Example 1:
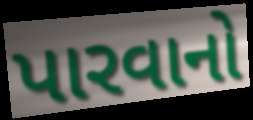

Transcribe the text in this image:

પારવાનો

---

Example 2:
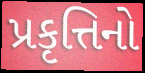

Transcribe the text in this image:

પ્રકૃત્તિનો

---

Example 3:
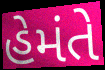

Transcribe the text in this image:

હેમંતે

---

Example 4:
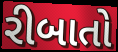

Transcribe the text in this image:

રીબાતો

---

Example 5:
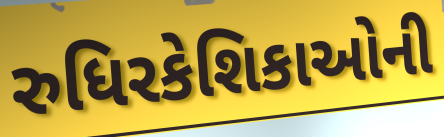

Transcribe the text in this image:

રુધિરકેશિકાઓની